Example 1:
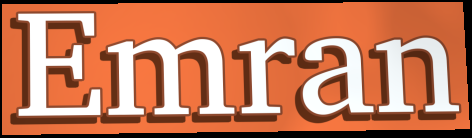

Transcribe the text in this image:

Emran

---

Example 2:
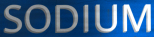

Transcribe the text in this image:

SODIUM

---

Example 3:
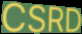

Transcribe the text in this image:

CSRD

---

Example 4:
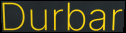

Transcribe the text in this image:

Durbar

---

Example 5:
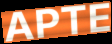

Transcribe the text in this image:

APTE